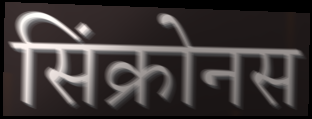
सिंक्रोनस